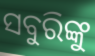
ସବୁରିଙ୍କୁ